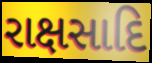
રાક્ષસાદિ